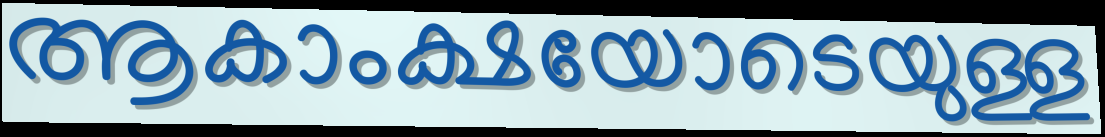
ആകാംക്ഷയോടെയുള്ള